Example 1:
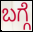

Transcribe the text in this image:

ಬಗ್ಗೆ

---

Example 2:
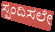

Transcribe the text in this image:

ಸ್ಪಂದಿಸಲೇ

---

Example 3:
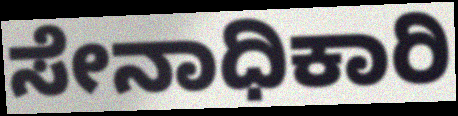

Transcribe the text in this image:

ಸೇನಾಧಿಕಾರಿ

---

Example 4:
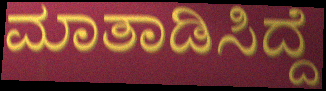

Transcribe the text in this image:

ಮಾತಾಡಿಸಿದ್ದೆ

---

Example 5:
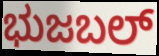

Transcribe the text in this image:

ಭುಜಬಲ್